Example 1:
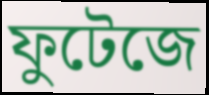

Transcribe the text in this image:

ফুটেজে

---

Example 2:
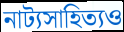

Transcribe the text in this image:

নাট্যসাহিত্যও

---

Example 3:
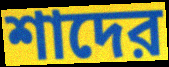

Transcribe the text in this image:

শাদের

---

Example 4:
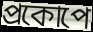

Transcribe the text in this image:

প্রকোপে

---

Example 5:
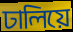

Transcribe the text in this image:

ঢালিয়ে